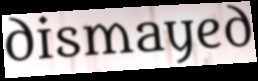
dismayed